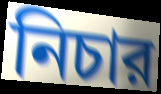
নিচার